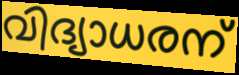
വിദ്യാധരന്